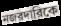
নজরদারিকে